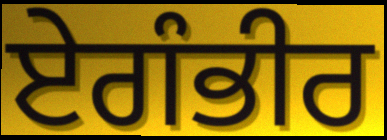
ਏਗੰਭੀਰ